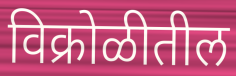
विक्रोळीतील